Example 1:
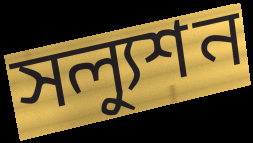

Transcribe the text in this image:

সল্যুশন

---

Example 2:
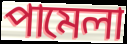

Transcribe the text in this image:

পামেলা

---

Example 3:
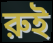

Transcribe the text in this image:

রুই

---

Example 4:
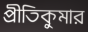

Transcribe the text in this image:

প্রীতিকুমার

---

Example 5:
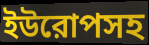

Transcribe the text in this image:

ইউরোপসহ